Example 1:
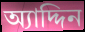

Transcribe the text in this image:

অ্যাদ্দিন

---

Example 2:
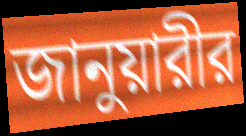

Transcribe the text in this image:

জানুয়ারীর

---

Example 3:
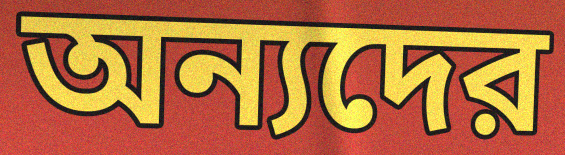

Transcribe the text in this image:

অন্যদের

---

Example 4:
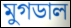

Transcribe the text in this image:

মুগডাল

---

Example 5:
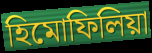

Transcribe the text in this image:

হিমোফিলিয়া